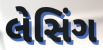
લેસિંગ